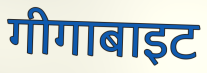
गीगाबाइट